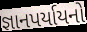
જ્ઞાનપર્યાયનો